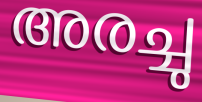
അരച്ചു